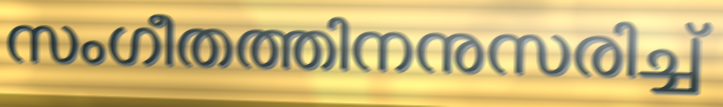
സംഗീതത്തിനനുസരിച്ച്